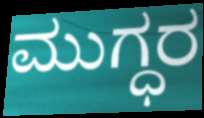
ಮುಗ್ಧರ